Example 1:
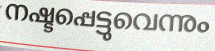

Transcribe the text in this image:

നഷ്ടപ്പെട്ടുവെന്നും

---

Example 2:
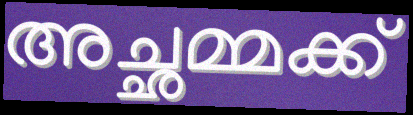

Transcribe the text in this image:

അച്ഛമ്മക്ക്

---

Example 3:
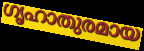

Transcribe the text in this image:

ഗൃഹാതുരമായ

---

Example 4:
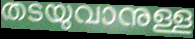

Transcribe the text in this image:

തടയുവാനുള്ള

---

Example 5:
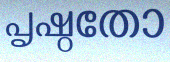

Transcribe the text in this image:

പൃഷ്ഠതോ